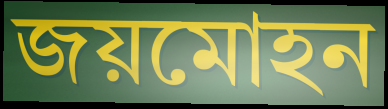
জয়মোহন